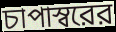
চাপাস্বরের